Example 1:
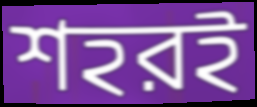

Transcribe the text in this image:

শহরই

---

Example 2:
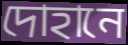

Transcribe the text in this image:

দোহানে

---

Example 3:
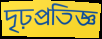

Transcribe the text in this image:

দৃঢ়প্রতিজ্ঞ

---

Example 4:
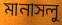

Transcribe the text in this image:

মানাসলু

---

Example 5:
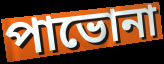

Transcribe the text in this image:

পাভোনা